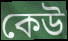
কেউ